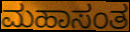
ಮಹಾಸಂತ